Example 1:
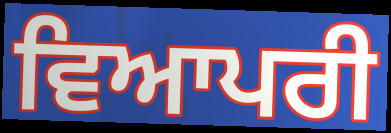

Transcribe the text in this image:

ਵਿਆਪਰੀ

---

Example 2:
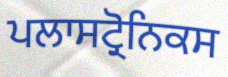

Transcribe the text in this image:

ਪਲਾਸਟ੍ਰੋਨਿਕਸ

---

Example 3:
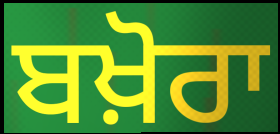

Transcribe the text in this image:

ਬਖ਼ੋਰਾ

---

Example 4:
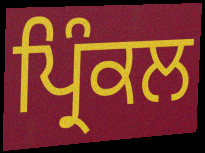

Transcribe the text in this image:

ਪ੍ਰਿੰਕਲ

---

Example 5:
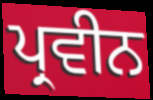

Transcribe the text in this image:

ਪ੍ਰਵੀਨ